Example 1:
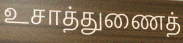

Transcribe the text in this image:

உசாத்துணைத்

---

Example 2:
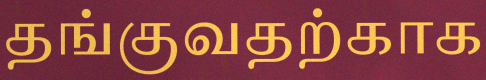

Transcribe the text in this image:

தங்குவதற்காக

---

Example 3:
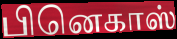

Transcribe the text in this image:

பினெகாஸ்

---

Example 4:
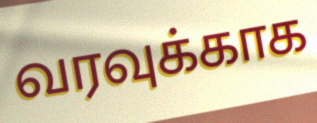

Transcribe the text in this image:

வரவுக்காக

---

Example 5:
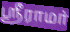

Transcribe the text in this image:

ஶ்ரீராமர்